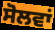
ਸੋਲਵਾਂ